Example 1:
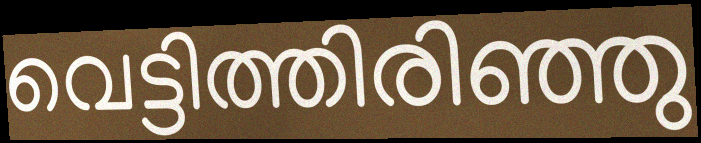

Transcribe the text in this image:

വെട്ടിത്തിരിഞ്ഞു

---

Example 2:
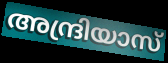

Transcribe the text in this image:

അന്ദ്രിയാസ്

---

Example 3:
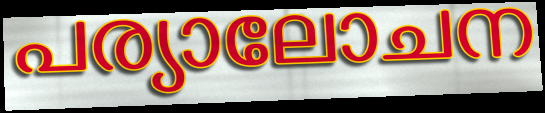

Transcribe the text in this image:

പര്യാലോചന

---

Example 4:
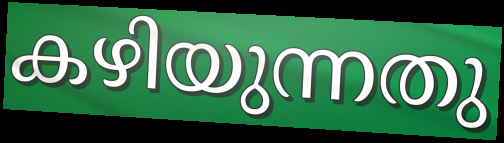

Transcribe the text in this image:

കഴിയുന്നതു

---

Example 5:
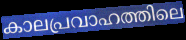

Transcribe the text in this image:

കാലപ്രവാഹത്തിലെ